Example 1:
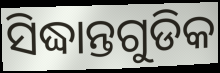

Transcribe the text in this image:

ସିଦ୍ଧାନ୍ତଗୁଡିକ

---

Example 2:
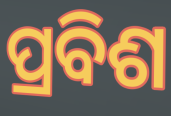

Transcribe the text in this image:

ପ୍ରବିଶ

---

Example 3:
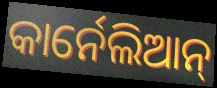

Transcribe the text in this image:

କାର୍ନେଲିଆନ୍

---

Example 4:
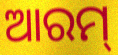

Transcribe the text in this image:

ଆରମ୍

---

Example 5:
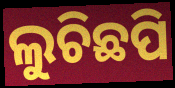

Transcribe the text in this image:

ଲୁଚିଛପି